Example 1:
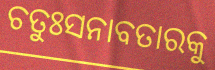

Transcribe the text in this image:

ଚତୁଃସନାବତାରକୁ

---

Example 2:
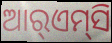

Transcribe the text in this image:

ଆର୍‌ଏମ୍‌ସି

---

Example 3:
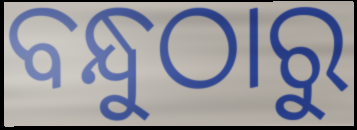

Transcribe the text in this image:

ବନ୍ଧୁଠାରୁ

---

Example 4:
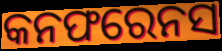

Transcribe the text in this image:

କନଫରେନସ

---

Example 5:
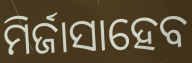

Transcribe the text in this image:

ମିର୍ଜାସାହେବ